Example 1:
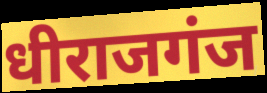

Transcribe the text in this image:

धीराजगंज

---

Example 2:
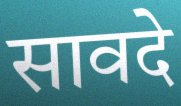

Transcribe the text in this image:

सावदे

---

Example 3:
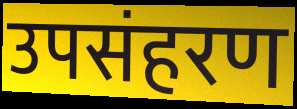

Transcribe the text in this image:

उपसंहरण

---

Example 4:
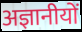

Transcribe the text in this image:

अज्ञानीयों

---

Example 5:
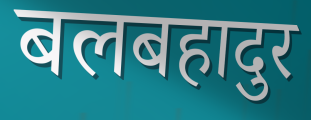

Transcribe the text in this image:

बलबहादुर